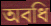
অবধি